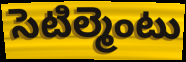
సెటిల్మెంటు